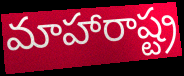
మాహారాష్ట్ర